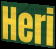
Heri